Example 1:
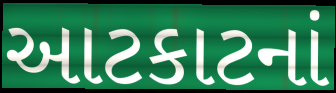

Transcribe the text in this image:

આટકાટનાં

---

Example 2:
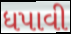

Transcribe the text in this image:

ધપાવી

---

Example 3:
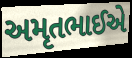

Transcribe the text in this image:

અમૃતભાઈએ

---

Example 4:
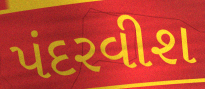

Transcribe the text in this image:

પંદરવીશ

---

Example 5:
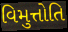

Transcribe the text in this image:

વિમુત્તોતિ